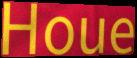
Houe